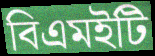
বিএমইটি